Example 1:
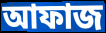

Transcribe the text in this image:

আফাজ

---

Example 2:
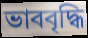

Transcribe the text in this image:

ভাববৃদ্ধি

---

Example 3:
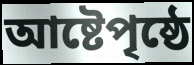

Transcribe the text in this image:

আষ্টেপৃষ্ঠে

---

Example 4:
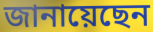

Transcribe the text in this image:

জানায়েছেন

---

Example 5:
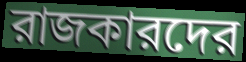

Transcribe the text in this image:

রাজকারদের